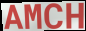
AMCH